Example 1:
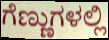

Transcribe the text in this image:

ಗೆಣ್ಣುಗಳಲ್ಲಿ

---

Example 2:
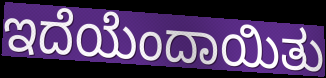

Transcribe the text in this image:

ಇದೆಯೆಂದಾಯಿತು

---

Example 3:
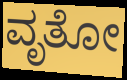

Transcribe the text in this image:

ವೃತೋ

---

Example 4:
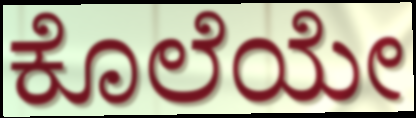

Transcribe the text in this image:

ಕೊಲೆಯೇ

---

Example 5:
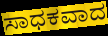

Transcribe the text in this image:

ಸಾಧಕವಾದ